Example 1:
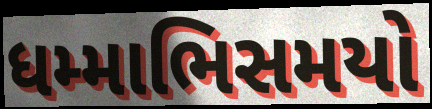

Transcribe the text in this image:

ધમ્માભિસમયો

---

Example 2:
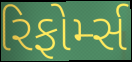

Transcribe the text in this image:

રિફોર્મ્સ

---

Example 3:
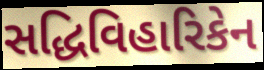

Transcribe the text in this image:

સદ્ધિવિહારિકેન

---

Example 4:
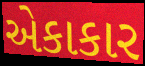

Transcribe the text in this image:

એકાકાર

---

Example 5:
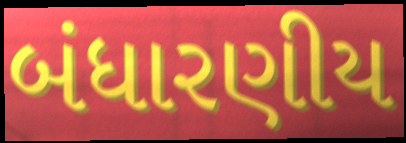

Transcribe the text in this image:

બંધારણીય